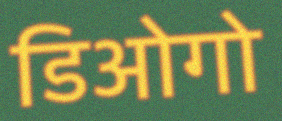
डिओगो